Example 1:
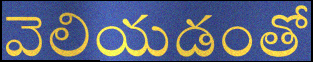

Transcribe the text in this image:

వెలియడంతో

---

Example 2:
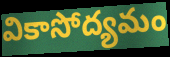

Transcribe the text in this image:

వికాసోద్యమం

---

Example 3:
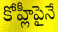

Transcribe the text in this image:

కోహ్లీపైనే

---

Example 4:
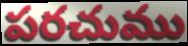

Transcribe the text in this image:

పరచుము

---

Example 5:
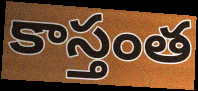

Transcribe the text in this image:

కాస్తంత